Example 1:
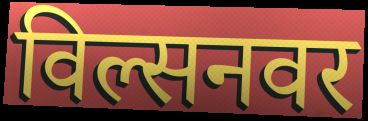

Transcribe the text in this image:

विल्सनवर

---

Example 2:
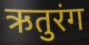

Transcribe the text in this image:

ऋतुरंग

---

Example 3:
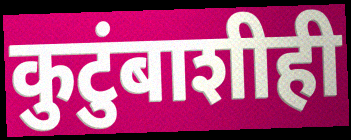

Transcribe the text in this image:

कुटुंबाशीही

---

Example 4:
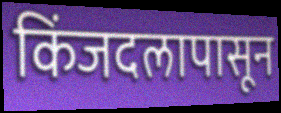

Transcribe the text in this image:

किंजदलापासून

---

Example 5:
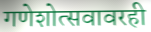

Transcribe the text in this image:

गणेशोत्सवावरही